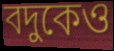
বদুকেও